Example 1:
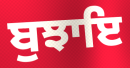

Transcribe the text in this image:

ਬੁਝਾਇ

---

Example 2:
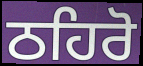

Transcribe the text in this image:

ਠਹਿਰੋ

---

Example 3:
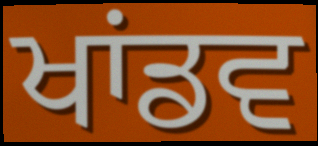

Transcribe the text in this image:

ਖਾਂਡਵ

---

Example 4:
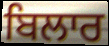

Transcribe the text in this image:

ਬਿਲਾਰ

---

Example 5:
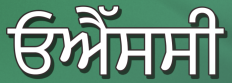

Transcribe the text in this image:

ਓਐੱਸਸੀ